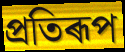
প্ৰতিৰূপ